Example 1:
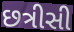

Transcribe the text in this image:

છત્રીસી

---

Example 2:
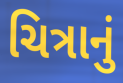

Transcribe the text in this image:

ચિત્રાનું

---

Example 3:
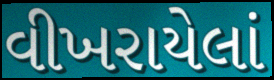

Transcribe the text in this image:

વીખરાયેલાં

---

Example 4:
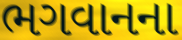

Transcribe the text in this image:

ભગવાનના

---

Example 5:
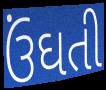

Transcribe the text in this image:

ઉંઘતી